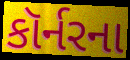
કૉર્નરના